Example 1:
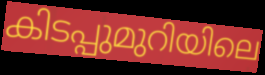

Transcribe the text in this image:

കിടപ്പുമുറിയിലെ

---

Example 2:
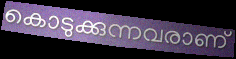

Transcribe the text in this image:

കൊടുക്കുന്നവരാണ്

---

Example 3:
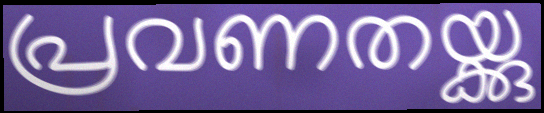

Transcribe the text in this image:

പ്രവണതയ്ക്കു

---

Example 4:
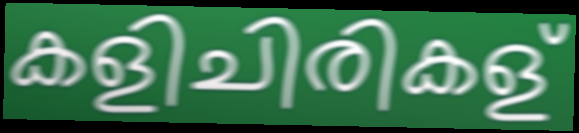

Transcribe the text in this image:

കളിചിരികള്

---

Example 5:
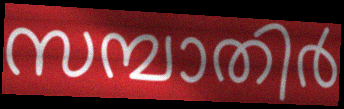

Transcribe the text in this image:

സമ്പാതിർ